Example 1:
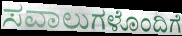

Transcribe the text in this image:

ಸವಾಲುಗಳೊಂದಿಗೆ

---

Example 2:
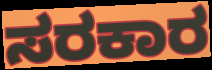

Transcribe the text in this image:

ಸರಕಾರ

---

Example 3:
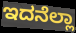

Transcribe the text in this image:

ಇದನೆಲ್ಲಾ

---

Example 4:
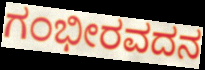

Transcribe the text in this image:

ಗಂಭೀರವದನ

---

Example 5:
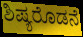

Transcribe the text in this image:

ಶಿಷ್ಯರೊಡನೆ